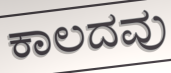
ಕಾಲದವು